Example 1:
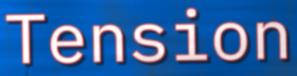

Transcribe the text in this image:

Tension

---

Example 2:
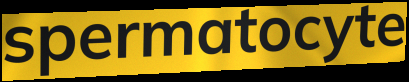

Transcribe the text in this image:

spermatocyte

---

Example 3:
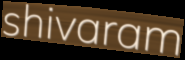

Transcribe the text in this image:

shivaram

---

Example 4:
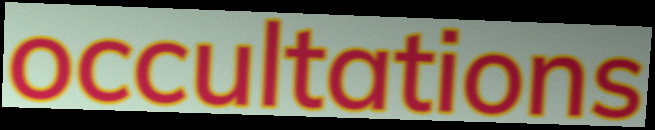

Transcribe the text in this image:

occultations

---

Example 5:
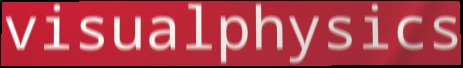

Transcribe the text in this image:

visualphysics